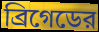
ব্রিগেডের